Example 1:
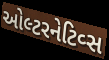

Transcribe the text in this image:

ઓલ્ટરનેટિવ્સ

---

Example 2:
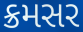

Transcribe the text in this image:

ક્રમસર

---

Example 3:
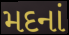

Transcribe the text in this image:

મદનાં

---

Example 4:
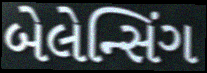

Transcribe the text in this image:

બેલેન્સિંગ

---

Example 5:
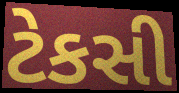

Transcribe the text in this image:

ટેકસી